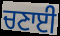
ਚਣਾਈ